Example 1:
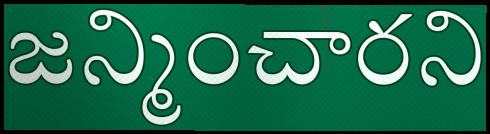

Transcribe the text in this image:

జన్మించారని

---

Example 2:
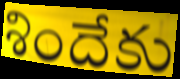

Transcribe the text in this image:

శిందేకు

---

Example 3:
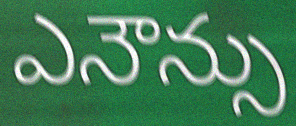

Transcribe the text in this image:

ఎనౌన్సు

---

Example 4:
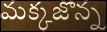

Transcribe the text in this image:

మక్కజొన్న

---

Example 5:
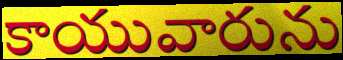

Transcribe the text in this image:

కాయువారును